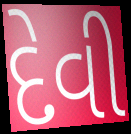
દેવી